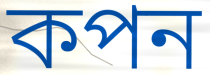
কপন